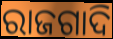
ରାଜଗାଦି